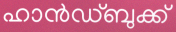
ഹാൻഡ്ബുക്ക്